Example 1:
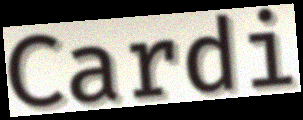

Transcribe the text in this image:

Cardi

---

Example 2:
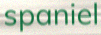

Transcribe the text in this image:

spaniel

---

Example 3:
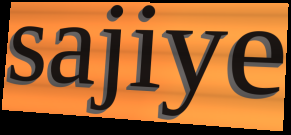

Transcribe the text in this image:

sajiye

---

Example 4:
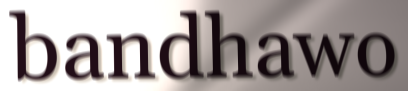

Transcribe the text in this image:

bandhawo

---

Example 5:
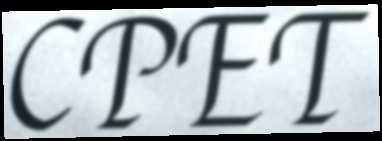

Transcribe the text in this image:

CPET